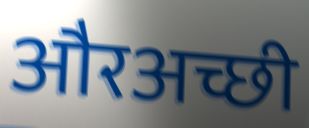
औरअच्छी